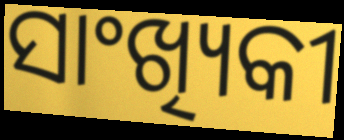
ସାଂଖ୍ୟିକୀ